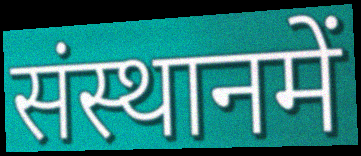
संस्थानमें